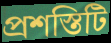
প্রশস্তিটি